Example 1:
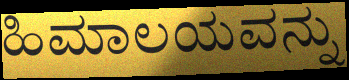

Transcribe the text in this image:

ಹಿಮಾಲಯವನ್ನು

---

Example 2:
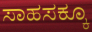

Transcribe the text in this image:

ಸಾಹಸಕ್ಕೂ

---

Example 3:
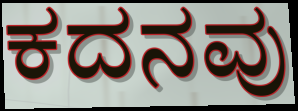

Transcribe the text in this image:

ಕದನವು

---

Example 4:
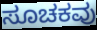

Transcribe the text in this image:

ಸೂಚಕವು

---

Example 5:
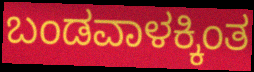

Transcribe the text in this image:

ಬಂಡವಾಳಕ್ಕಿಂತ